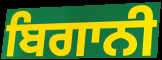
ਬਿਗਾਨੀ